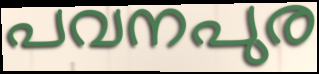
പവനപുര